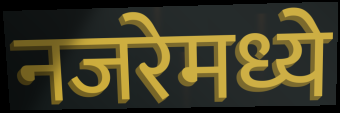
नजरेमध्ये